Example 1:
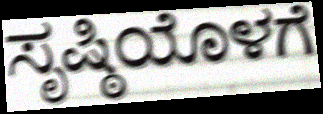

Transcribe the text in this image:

ಸೃಷ್ಠಿಯೊಳಗೆ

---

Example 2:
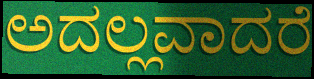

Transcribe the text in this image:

ಅದಲ್ಲವಾದರೆ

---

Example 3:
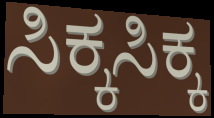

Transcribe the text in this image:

ಸಿಕ್ಕಸಿಕ್ಕ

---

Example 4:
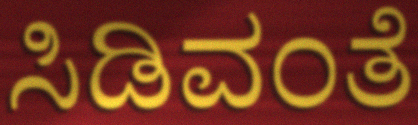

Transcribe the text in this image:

ಸಿಡಿವಂತೆ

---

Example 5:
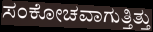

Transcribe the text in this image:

ಸಂಕೋಚವಾಗುತ್ತಿತ್ತು